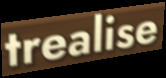
trealise